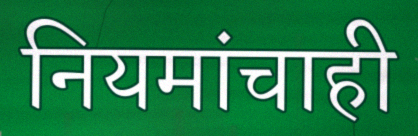
नियमांचाही